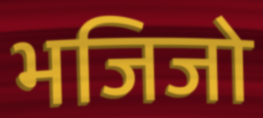
भजिजो